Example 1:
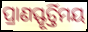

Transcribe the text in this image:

ପ୍ରାଣସ୍ଫୂର୍ତ୍ତିମୟ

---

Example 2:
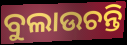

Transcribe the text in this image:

ବୁଲାଉଚନ୍ତି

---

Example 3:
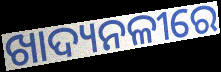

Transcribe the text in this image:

ଖାଦ୍ୟନଳୀରେ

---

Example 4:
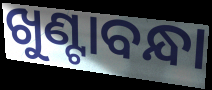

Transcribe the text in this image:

ଖୁଣ୍ଟାବନ୍ଧା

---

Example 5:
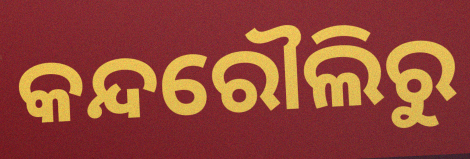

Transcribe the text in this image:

କନ୍ଦରୌଲିରୁ